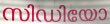
സിഡിയോ